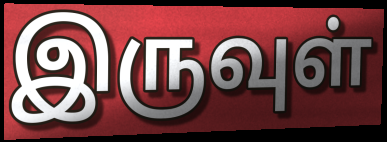
இருவுள்